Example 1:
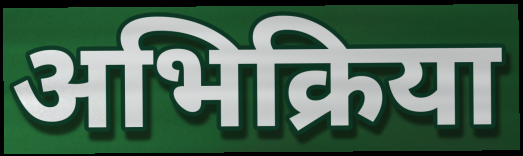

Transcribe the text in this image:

अभिक्रिया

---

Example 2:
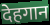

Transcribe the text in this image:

देहगान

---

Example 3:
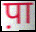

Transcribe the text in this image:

प़ा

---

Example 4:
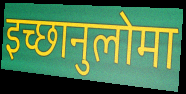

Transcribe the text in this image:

इच्छानुलोमा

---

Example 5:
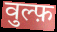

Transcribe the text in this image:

वुल्फ़